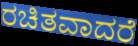
ರಚಿತವಾದರೆ